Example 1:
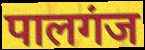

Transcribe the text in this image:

पालगंज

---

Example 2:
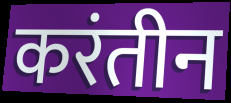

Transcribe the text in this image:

करंतीन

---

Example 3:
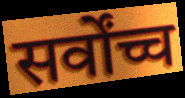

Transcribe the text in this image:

सर्वोंच्च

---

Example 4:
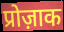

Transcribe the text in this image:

प्रोज़ाक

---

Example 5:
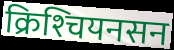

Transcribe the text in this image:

क्रिश्चियनसन